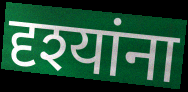
दृश्यांना